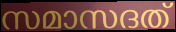
സമാസദത്